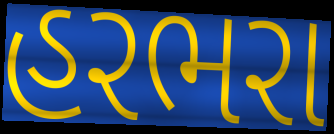
હરભરા